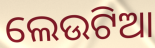
ଲେଉଟିଆ